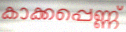
കാക്കപ്പെണ്ണ്